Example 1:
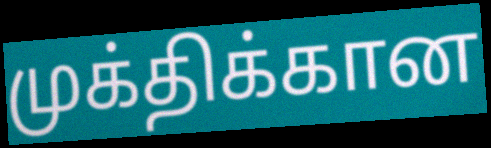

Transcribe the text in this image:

முக்திக்கான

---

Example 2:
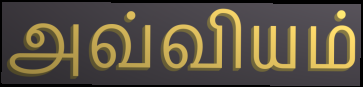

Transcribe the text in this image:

அவ்வியம்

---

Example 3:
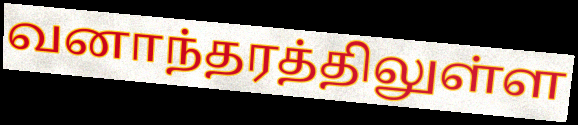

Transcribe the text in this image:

வனாந்தரத்திலுள்ள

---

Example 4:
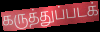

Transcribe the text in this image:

கருத்துப்படக்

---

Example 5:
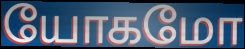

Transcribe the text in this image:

யோகமோ